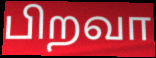
பிறவா